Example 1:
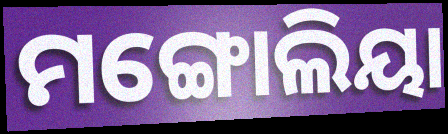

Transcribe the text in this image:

ମଙ୍ଗୋଲିୟା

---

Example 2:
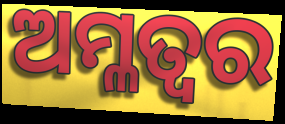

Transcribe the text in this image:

ଅମ୍ଳତ୍ଵର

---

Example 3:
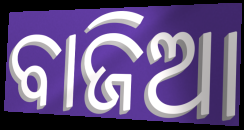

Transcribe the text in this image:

ବାଜିଆ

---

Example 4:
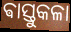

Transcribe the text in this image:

ଵାସ୍ତୁକଳା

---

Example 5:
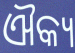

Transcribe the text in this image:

ଐକ୍ୟ